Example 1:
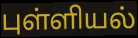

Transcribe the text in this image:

புள்ளியல்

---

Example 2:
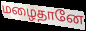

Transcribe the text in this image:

மழைதானே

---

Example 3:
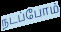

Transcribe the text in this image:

நடப்போம்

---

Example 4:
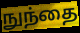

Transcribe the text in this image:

நுந்தை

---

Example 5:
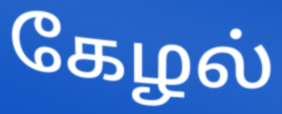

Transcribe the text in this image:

கேழல்